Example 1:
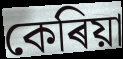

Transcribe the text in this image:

কেৰিয়া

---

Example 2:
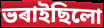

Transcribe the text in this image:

ভৰাইছিলো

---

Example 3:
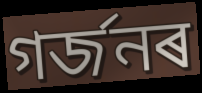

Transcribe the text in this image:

গৰ্জনৰ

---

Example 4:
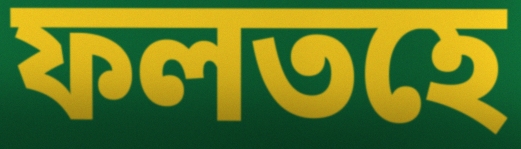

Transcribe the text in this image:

ফলতহে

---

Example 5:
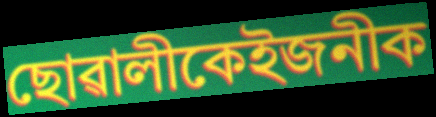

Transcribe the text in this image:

ছোৱালীকেইজনীক